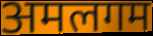
अमलगम